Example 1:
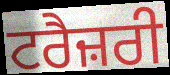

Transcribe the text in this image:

ਟਰੈਜ਼ਰੀ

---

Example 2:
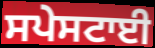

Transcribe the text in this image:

ਸਪੇਸਟਾਈ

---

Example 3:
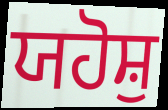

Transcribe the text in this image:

ਯਹੋਸ਼ੁ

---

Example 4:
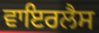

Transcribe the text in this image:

ਵਾਇਰਲੈਸ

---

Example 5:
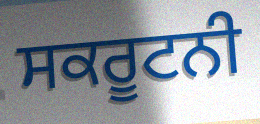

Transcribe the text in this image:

ਸਕਰੂਟਨੀ